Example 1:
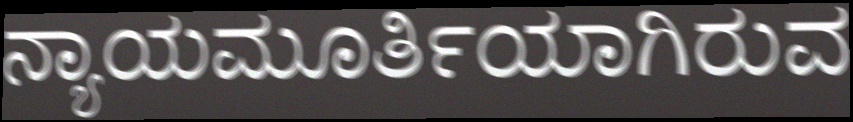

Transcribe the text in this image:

ನ್ಯಾಯಮೂರ್ತಿಯಾಗಿರುವ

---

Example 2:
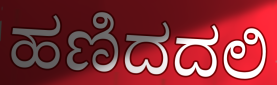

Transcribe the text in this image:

ಹಣಿದದಲಿ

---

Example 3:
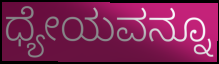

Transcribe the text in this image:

ಧ್ಯೇಯವನ್ನೂ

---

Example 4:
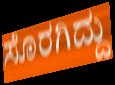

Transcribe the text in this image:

ಸೊರಗಿದ್ದು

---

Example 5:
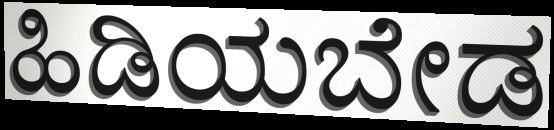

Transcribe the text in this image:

ಹಿಡಿಯಬೇಡ